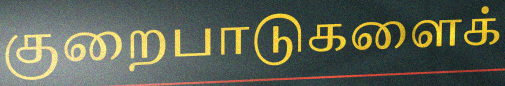
குறைபாடுகளைக்